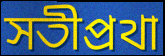
সতীপ্রথা